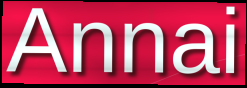
Annai